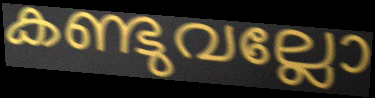
കണ്ടുവല്ലോ